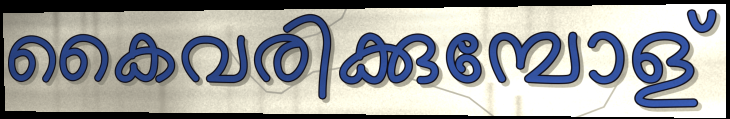
കൈവരിക്കുമ്പോള്